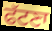
ਫੱਟਣਾ